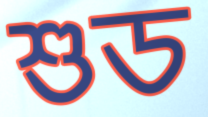
শুড